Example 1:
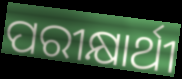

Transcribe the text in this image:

ପରୀକ୍ଷାର୍ଥୀ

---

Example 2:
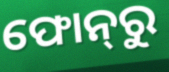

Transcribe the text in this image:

ଫୋନ୍‌ରୁ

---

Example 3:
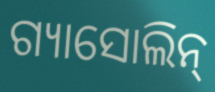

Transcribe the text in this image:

ଗ୍ୟାସୋଲିନ୍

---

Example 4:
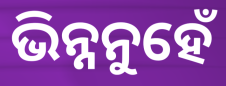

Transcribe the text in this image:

ଭିନ୍ନନୁହେଁ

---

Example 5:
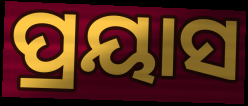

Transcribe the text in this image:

ପ୍ରୟାସ